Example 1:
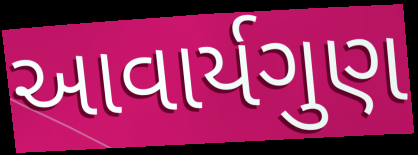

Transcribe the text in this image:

આવાર્યગુણ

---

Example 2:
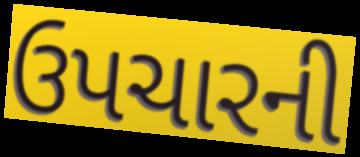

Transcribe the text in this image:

ઉપચારની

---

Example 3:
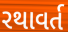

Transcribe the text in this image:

રથાવર્ત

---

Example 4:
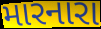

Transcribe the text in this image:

મારનારા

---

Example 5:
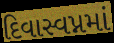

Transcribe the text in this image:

દિવાસ્વપ્નમાં